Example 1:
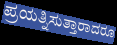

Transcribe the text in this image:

ಪ್ರಯತ್ನಿಸುತ್ತಾರಾದರೂ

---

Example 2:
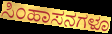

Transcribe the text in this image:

ಸಿಂಹಾಸನಗಳೂ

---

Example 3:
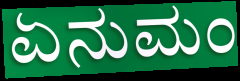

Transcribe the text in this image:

ಏನುಮಂ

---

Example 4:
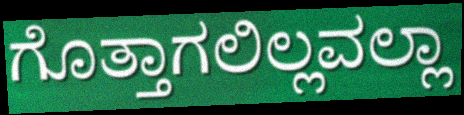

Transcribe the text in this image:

ಗೊತ್ತಾಗಲಿಲ್ಲವಲ್ಲಾ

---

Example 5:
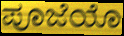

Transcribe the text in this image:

ಪೂಜೆಯೊ